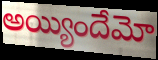
అయ్యిందేమో